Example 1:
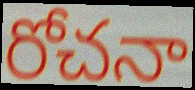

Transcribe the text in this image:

రోచనా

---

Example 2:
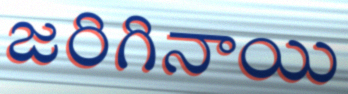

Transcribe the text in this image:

జరిగినాయి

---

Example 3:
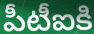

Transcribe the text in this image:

పీటీఐకి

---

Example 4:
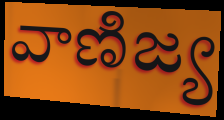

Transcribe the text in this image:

వాణిజ్య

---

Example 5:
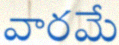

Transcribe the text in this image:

వారమే